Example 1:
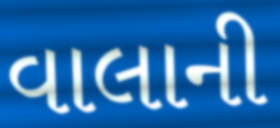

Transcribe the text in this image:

વાલાની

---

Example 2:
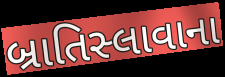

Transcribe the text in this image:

બ્રાતિસ્લાવાના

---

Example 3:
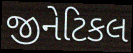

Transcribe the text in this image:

જીનેટિકલ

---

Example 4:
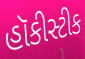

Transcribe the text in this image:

હૉકીસ્ટીક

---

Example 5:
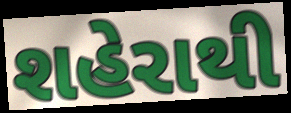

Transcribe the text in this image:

શહેરાથી